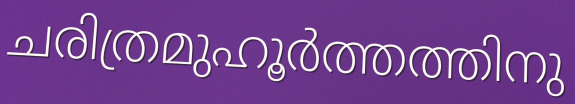
ചരിത്രമുഹൂർത്തത്തിനു